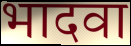
भादवा